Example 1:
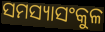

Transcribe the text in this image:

ସମସ୍ୟାସଂକୁଳ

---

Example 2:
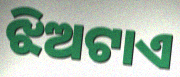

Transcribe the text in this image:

ଝିଅଟାଏ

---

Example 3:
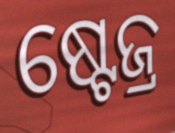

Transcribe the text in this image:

ଷ୍ଟେଜ୍ର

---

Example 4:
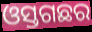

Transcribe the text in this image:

ଓସ୍ତଗଛର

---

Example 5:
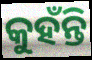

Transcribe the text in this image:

କୁହଁନ୍ତି